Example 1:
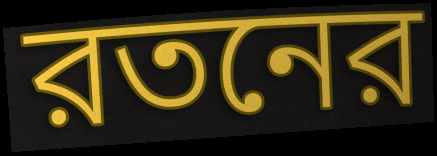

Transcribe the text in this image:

রতনের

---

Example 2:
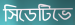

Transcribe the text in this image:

সিডেটিভে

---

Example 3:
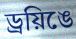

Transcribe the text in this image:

ড্রয়িঙে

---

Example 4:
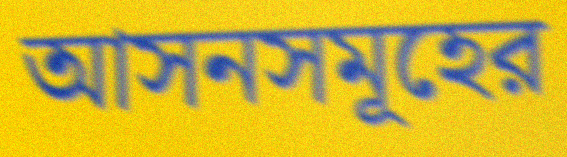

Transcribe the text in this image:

আসনসমূহের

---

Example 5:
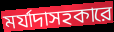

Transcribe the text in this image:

মর্যাদাসহকারে